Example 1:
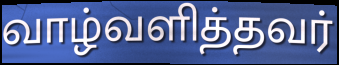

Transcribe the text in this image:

வாழ்வளித்தவர்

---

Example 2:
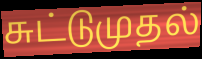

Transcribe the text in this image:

சுட்டுமுதல்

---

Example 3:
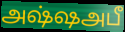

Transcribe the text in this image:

அஷ்ஷஅபீ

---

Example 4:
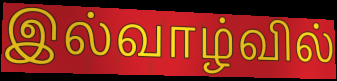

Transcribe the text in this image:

இல்வாழ்வில்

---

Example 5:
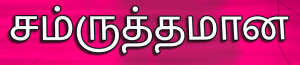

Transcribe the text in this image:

சம்ருத்தமான